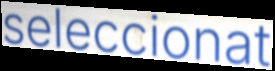
seleccionat